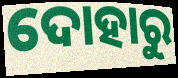
ଦୋହାରୁ